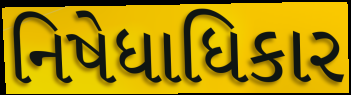
નિષેધાધિકાર